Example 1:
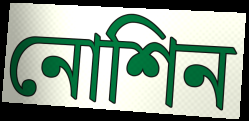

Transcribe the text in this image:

নোশিন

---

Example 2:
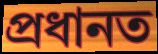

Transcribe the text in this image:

প্রধানত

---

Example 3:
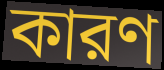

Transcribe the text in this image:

কারণ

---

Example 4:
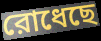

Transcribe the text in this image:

রোধেছে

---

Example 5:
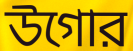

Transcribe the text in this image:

উগোর